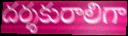
దర్శకురాలిగా